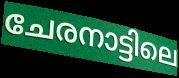
ചേരനാട്ടിലെ